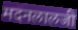
मदनलालजी